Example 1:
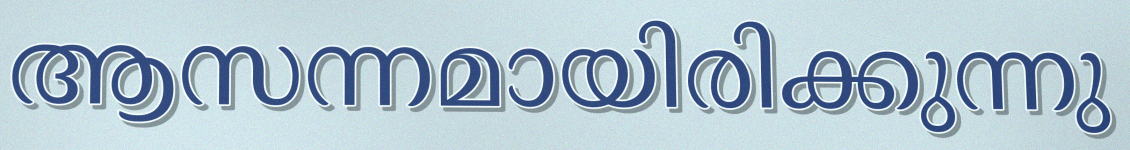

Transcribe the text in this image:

ആസന്നമായിരിക്കുന്നു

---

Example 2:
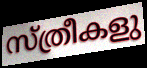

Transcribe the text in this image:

സ്ത്രീകളു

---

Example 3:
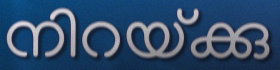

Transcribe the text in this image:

നിറയ്‌ക്കു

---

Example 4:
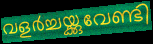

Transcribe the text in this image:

വളർച്ചയ്ക്കുവേണ്ടി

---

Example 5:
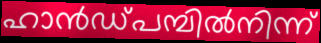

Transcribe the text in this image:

ഹാൻഡ്പമ്പിൽനിന്ന്